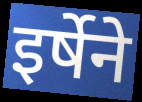
इर्षेने